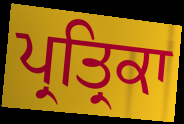
ਪ੍ਰਤ੍ਰਿਕਾ